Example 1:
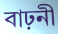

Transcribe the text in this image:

বাঢ়নী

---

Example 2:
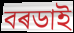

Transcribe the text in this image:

বৰডাই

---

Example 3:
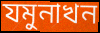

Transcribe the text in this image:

যমুনাখন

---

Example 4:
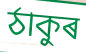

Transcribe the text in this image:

ঠাকুৰ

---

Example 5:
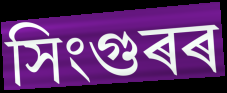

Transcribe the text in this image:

সিংগুৰৰ